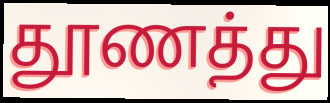
தூணத்து